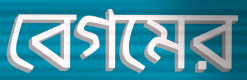
বেগমের